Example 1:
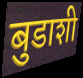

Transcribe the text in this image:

बुडाशी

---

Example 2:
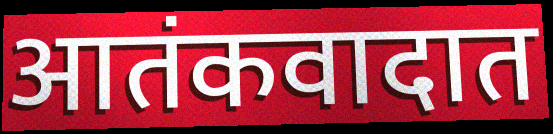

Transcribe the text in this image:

आतंकवादात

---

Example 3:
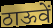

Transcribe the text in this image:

ठाऊवें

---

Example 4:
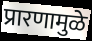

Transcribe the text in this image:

प्रारणामुळे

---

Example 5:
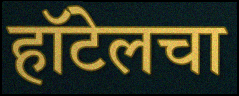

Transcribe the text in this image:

हॉटेलचा